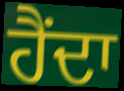
ਹੈਂਦਾ